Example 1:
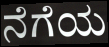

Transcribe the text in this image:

ನೆಗೆಯ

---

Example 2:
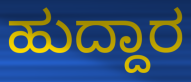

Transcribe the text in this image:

ಹುದ್ದಾರ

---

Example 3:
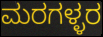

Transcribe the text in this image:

ಮರಗಳ್ಳರ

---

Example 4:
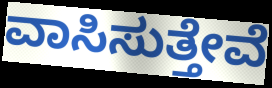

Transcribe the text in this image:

ವಾಸಿಸುತ್ತೇವೆ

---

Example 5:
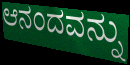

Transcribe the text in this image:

ಆನಂದವನ್ನು